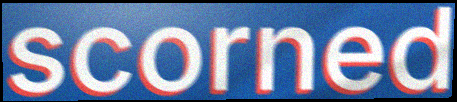
scorned